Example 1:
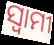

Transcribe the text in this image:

ସ୍ବାମୀ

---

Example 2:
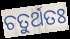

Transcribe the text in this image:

ଚତୁର୍ଥତଃ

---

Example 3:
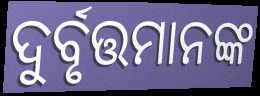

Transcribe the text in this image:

ଦୁର୍ବୃତ୍ତମାନଙ୍କ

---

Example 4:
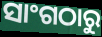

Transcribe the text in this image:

ସାଂଗଠାରୁ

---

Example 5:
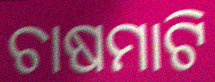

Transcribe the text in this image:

ଚାଷମାଟି